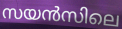
സയൻസിലെ